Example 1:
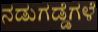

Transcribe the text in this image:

ನಡುಗಡ್ಡೆಗಳೆ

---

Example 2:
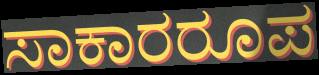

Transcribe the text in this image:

ಸಾಕಾರರೂಪ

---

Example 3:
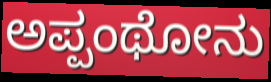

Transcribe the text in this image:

ಅಪ್ಪಂಥೋನು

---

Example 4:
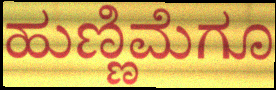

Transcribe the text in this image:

ಹುಣ್ಣಿಮೆಗೂ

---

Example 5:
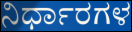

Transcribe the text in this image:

ನಿರ್ಧಾರಗಳ